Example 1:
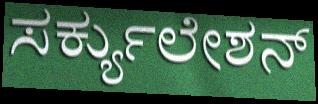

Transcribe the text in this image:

ಸರ್ಕ್ಯುಲೇಶನ್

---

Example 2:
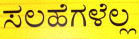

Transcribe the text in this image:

ಸಲಹೆಗಳೆಲ್ಲ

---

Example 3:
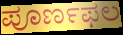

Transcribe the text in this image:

ಪೂರ್ಣಫಲ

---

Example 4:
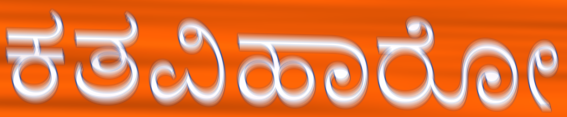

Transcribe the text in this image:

ಕತವಿಹಾರೋ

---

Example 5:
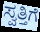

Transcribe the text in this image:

ಸ್ವತ್ತಿಗೆ